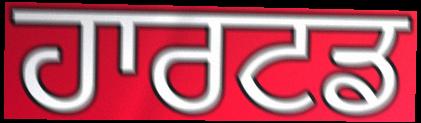
ਹਾਰਟਡ